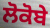
ਲੋਕੋਬੇ